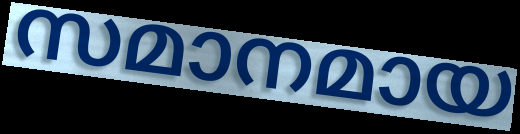
സമാനമായ